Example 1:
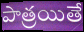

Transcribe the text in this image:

పాత్రయితే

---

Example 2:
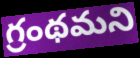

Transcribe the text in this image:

గ్రంథమని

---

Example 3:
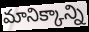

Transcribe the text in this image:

మానిక్కాన్ని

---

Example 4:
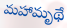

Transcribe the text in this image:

మహామృథే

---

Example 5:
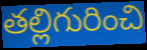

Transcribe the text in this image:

తల్లిగురించి